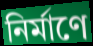
নির্মাণে